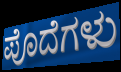
ಪೊದೆಗಳು